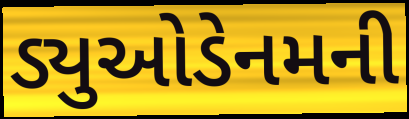
ડ્યુઓડેનમની